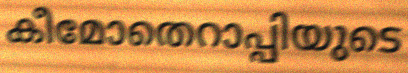
കീമോതെറാപ്പിയുടെ